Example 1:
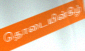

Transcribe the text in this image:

தொடையின்கீழ்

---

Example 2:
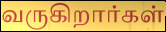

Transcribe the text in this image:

வருகிறார்கள்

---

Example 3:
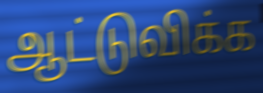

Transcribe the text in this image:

ஆட்டுவிக்க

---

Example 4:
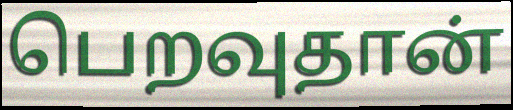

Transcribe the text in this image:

பெறவுதான்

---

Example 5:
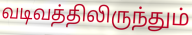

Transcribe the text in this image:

வடிவத்திலிருந்தும்